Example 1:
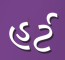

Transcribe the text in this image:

હર્ટ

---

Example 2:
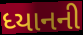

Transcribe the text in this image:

ધ્યાનની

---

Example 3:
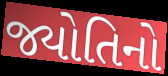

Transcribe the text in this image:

જ્યોતિનો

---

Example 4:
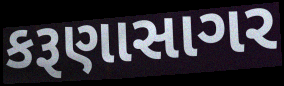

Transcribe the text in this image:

કરૂણાસાગર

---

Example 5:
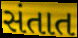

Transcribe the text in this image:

સંતાત